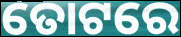
ତୋଟରେ